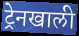
ट्रेनखाली